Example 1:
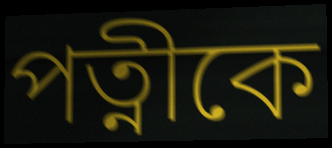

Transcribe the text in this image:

পত্নীকে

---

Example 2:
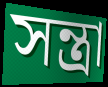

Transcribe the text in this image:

সন্ত্রা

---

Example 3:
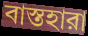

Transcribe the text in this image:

বাস্তহারা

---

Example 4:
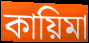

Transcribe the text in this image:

কায়িমা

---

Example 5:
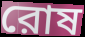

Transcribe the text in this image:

রোষ